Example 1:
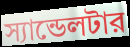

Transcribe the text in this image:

স্যান্ডেলটার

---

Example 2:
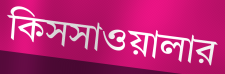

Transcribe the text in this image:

কিসসাওয়ালার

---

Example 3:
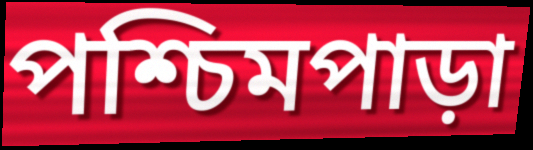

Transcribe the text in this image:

পশ্চিমপাড়া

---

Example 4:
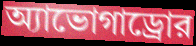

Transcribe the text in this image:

অ্যাভোগাড্রোর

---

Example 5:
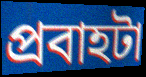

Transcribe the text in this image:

প্রবাহটা